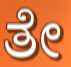
ತೇ